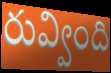
రువ్వింది